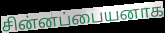
சின்னப்பையனாக